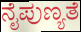
ನೈಪುಣ್ಯತೆ